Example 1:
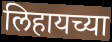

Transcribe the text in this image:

लिहायच्या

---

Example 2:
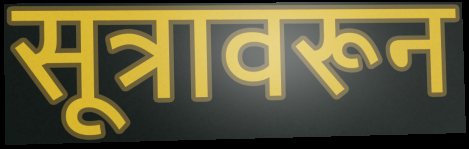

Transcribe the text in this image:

सूत्रावरून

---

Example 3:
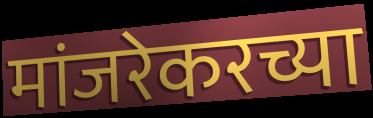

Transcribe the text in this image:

मांजरेकरच्या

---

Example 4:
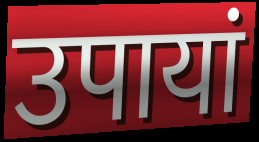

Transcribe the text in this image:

उपायां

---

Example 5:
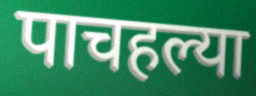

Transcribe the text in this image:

पाचहल्या